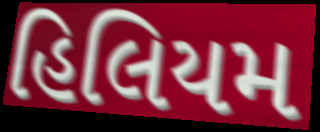
હિલિયમ